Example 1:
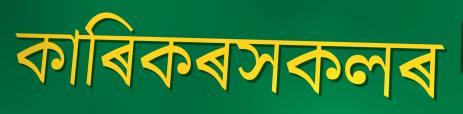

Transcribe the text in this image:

কাৰিকৰসকলৰ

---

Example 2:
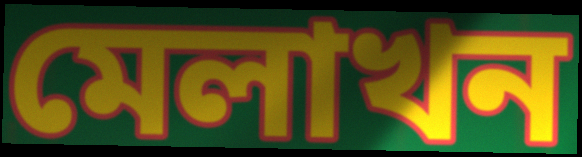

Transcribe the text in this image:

মেলাখন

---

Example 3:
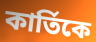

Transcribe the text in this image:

কাৰ্তিকে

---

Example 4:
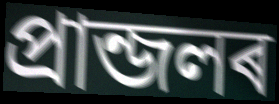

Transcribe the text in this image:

প্ৰান্জলৰ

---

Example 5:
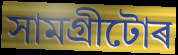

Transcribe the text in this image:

সামগ্ৰীটোৰ